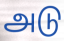
அடு